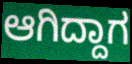
ಆಗಿದ್ದಾಗ